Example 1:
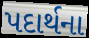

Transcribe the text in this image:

પદાર્થના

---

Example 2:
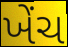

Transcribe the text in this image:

ખેંચ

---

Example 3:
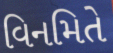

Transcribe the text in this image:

વિનમિતે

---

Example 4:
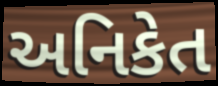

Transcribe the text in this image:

અનિકેત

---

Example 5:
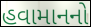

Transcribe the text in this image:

હવામાનનો